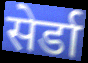
सेर्डा